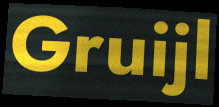
Gruijl